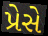
પ્રેસે